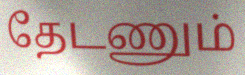
தேடணும்